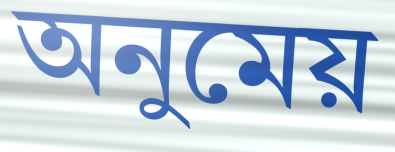
অনুমেয়